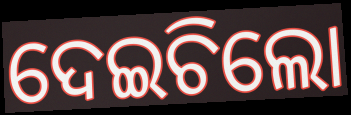
ଦେଇଚିଲୋ